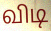
விடி